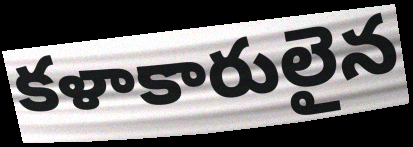
కళాకారులైన